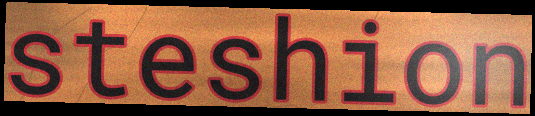
steshion